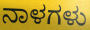
ನಾಳಗಳು